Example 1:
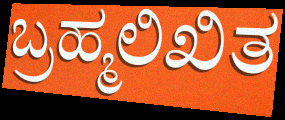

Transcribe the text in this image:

ಬ್ರಹ್ಮಲಿಖಿತ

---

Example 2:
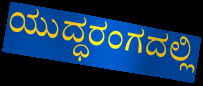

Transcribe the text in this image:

ಯುದ್ಧರಂಗದಲ್ಲಿ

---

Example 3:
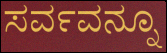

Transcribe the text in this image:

ಸರ್ವವನ್ನೂ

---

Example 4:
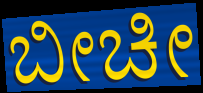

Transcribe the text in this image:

ಬೀಚೀ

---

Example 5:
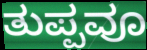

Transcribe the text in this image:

ತುಪ್ಪವೂ